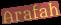
Arafah